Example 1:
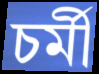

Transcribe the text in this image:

চর্মী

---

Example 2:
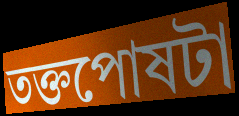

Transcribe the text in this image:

তক্তপোষটা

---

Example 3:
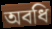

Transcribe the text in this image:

অবধি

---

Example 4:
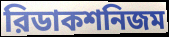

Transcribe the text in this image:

রিডাকশনিজম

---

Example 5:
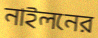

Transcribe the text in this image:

নাইলনের